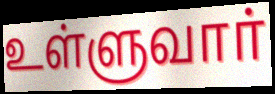
உள்ளுவார்